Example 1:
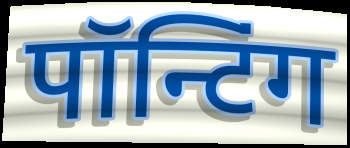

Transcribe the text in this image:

पॉन्टिंग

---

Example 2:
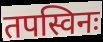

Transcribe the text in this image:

तपस्विनः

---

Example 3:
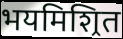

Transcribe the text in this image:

भयमिश्रित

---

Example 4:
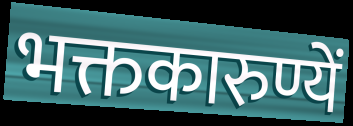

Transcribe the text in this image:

भक्तकारुण्यें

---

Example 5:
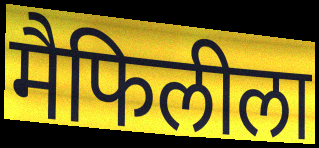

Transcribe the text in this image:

मैफिलीला